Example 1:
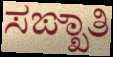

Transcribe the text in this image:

ಸಙ್ಖಾತಿ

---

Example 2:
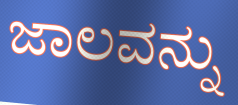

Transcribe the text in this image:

ಜಾಲವನ್ನು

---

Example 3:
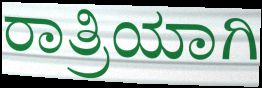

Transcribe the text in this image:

ರಾತ್ರಿಯಾಗಿ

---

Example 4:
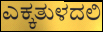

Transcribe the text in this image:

ಎಕ್ಕತುಳದಲಿ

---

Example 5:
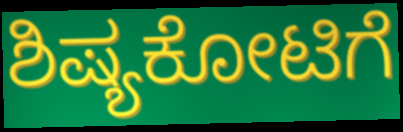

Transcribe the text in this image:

ಶಿಷ್ಯಕೋಟಿಗೆ